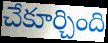
చేకూర్చింది